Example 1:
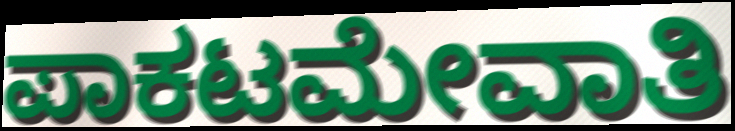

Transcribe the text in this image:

ಪಾಕಟಮೇವಾತಿ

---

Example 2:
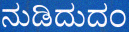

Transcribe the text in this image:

ನುಡಿದುದಂ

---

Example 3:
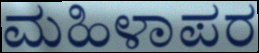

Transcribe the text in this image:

ಮಹಿಳಾಪರ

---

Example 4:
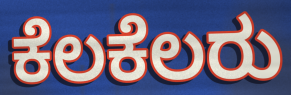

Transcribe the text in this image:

ಕೆಲಕೆಲರು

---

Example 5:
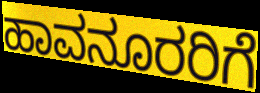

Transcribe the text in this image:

ಹಾವನೂರರಿಗೆ